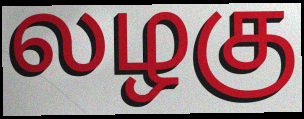
லழகு